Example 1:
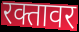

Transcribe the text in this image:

रक्तावर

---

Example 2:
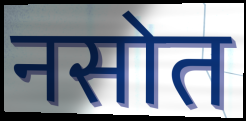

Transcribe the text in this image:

नसोत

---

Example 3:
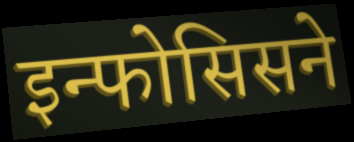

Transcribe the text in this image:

इन्फोसिसने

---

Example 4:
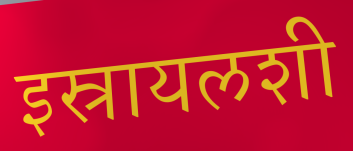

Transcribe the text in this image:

इस्रायलशी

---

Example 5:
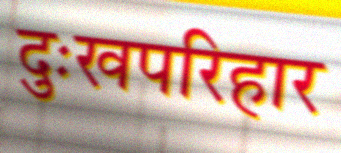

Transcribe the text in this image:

दुःखपरिहार